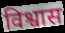
विश्वास